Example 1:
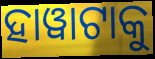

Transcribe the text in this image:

ହାୱାଟାକୁ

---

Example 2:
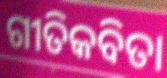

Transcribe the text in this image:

ଗୀତିକବିତା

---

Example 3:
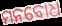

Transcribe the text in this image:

ମନବୋଧ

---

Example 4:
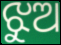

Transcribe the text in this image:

ଝୁଅ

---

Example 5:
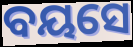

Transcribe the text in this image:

ବୟସେ